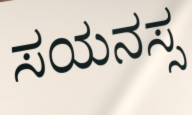
ಸಯನಸ್ಸ